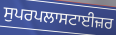
ਸੁਪਰਪਲਾਸਟਾਈਜ਼ਰ